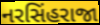
નરસિંહરાજા